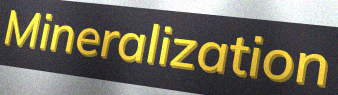
Mineralization